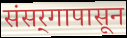
संसर्गापासून